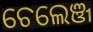
ଚେଲେଞ୍ଜ